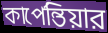
কার্পেন্তিয়ার